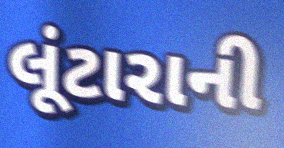
લૂંટારાની